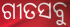
ଗୀତସବୁ